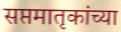
सप्तमातृकांच्या